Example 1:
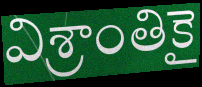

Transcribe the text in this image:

విశ్రాంతికై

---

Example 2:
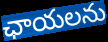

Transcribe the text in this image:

ఛాయలను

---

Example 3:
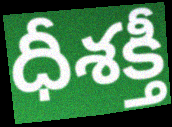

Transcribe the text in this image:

ధీశక్తీ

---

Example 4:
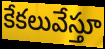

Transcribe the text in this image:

కేకలువేస్తూ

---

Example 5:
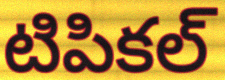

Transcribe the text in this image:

టిపికల్